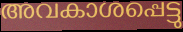
അവകാശപ്പെട്ടു